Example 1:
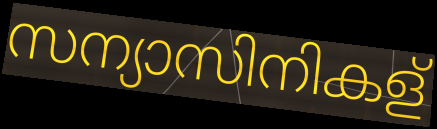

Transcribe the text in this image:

സന്യാസിനികള്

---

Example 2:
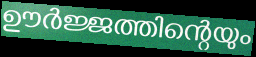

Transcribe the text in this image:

ഊർജ്ജത്തിന്റെയും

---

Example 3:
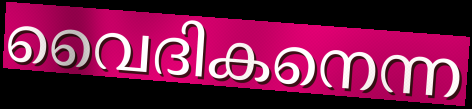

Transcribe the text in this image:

വൈദികനെന്ന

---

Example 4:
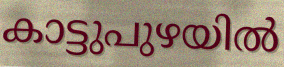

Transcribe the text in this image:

കാട്ടുപുഴയിൽ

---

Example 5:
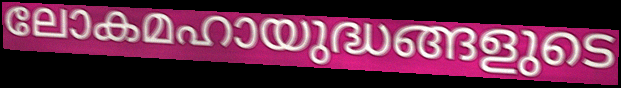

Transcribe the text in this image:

ലോകമഹായുദ്ധങ്ങളുടെ